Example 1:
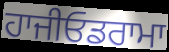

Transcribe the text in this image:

ਹਾਜੀਓਡਰਾਮਾ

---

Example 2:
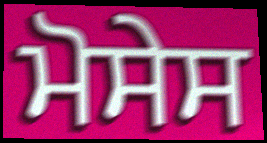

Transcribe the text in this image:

ਮੋਸੇਸ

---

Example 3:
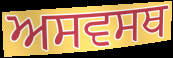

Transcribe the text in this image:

ਅਸਵਸਥ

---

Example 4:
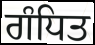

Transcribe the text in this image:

ਗੰਧਿਤ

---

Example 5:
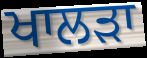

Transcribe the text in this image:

ਖਾਲੜਾ